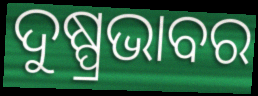
ଦୁଷ୍ପ୍ରଭାବର